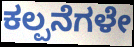
ಕಲ್ಪನೆಗಳೇ